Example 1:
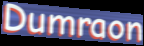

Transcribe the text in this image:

Dumraon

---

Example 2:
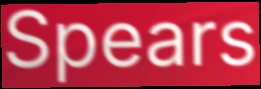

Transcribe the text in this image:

Spears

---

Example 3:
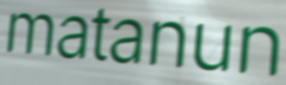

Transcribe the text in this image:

matanun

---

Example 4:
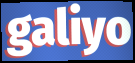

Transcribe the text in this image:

galiyo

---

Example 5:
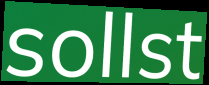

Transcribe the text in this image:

sollst